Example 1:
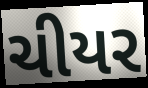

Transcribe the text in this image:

ચીયર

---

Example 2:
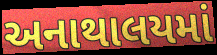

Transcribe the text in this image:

અનાથાલયમાં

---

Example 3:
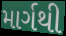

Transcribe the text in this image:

માર્ગથી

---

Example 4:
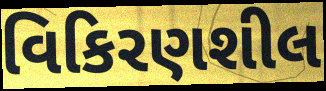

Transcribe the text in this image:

વિકિરણશીલ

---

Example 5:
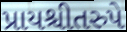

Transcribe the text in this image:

પ્રાયશ્ચીતરુપે